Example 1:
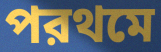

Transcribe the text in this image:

পরথমে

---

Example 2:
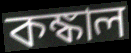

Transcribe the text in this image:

কঙ্কাল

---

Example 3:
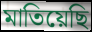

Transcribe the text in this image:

মাতিয়েছি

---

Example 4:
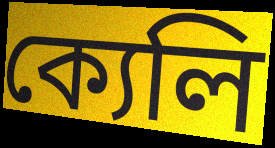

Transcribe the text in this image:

ক্যেলি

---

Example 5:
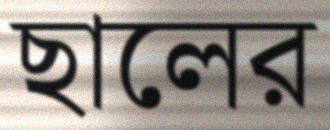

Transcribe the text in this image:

ছালের